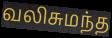
வலிசுமந்த